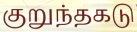
குறுந்தகடு